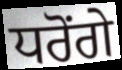
ਧਰੋਂਗੇ